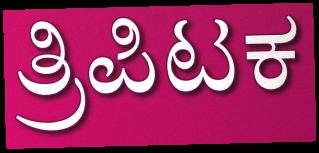
ತ್ರಿಪಿಟಕ